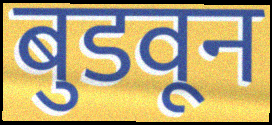
बुडवून